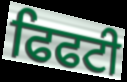
ਫਿਫਟੀ